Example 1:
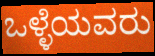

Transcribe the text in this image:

ಒಳ್ಳೆಯವರು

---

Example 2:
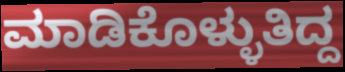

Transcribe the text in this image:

ಮಾಡಿಕೊಳ್ಳುತಿದ್ದ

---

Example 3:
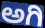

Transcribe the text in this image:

ಅಗಿ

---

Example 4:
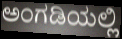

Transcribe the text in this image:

ಅಂಗಡಿಯಲ್ಲಿ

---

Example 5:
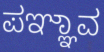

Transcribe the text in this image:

ಪಞ್ಞಾವ